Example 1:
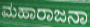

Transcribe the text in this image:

ಮಹಾರಾಜನಾ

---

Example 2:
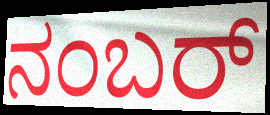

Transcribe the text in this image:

ನಂಬರ್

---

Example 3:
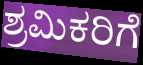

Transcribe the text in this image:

ಶ್ರಮಿಕರಿಗೆ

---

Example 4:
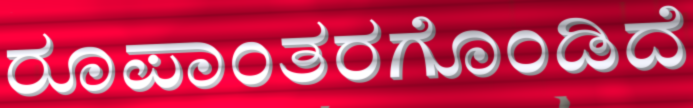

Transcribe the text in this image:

ರೂಪಾಂತರಗೊಂಡಿದೆ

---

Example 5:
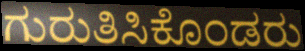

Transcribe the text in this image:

ಗುರುತಿಸಿಕೊಂಡರು